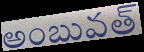
అంబువత్